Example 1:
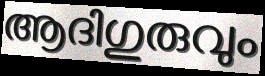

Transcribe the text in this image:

ആദിഗുരുവും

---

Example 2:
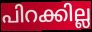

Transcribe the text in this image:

പിറക്കില്ല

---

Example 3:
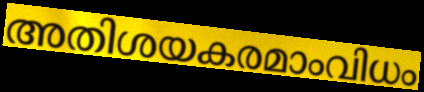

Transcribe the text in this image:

അതിശയകരമാംവിധം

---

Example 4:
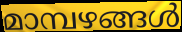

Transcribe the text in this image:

മാമ്പഴങ്ങൾ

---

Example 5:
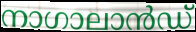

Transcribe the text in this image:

നാഗാലാൻഡ്